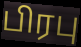
பிரபு